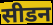
सीडन